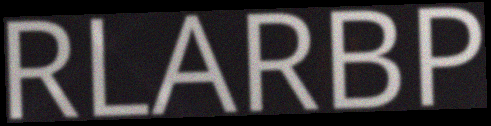
RLARBP